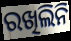
ରଖିଲିନି